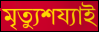
মৃত্যুশয্যাই